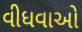
વીધવાઓ